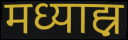
मध्याह्न